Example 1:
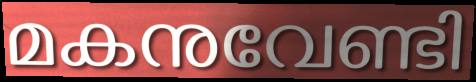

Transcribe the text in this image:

മകനുവേണ്ടി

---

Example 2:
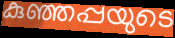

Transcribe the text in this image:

കുഞ്ഞപ്പയുടെ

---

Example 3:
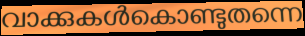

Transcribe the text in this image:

വാക്കുകൾകൊണ്ടുതന്നെ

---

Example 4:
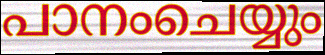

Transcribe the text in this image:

പാനംചെയ്യും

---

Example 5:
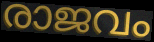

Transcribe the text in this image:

രാജവം